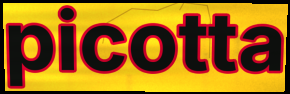
picotta